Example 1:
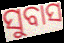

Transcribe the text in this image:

ସୁବାସ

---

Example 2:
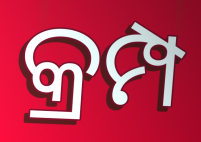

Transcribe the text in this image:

କ୍ରମ୍ପ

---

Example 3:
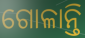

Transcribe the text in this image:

ଗୋଳାନ୍ତି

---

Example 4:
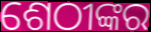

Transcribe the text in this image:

ଶେଠୀଙ୍କର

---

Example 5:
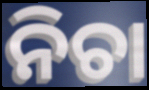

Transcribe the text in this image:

ନିଚା